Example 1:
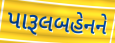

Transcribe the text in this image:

પારૂલબહેનને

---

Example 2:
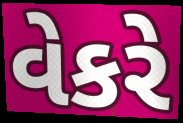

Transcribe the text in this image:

વેકરે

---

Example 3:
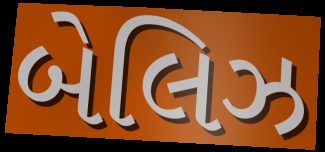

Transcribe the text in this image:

બેલિઝ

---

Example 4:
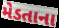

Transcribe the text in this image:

મેડતાના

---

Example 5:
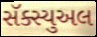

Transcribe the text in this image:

સૅક્સ્યુઅલ